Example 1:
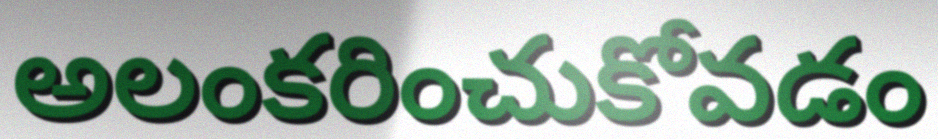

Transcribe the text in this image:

అలంకరించుకోవడం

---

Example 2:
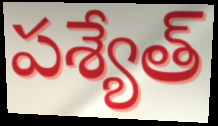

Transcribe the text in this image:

పశ్యేత్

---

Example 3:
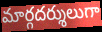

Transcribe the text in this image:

మార్గదర్శులుగా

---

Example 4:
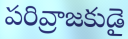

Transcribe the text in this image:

పరివ్రాజకుడై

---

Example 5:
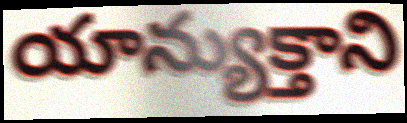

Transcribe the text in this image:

యాన్యుక్తాని